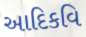
આદિકવિ